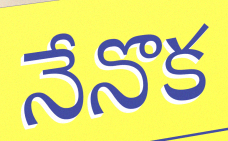
నేనొక